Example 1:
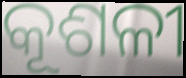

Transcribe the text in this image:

କୂଶଳୀ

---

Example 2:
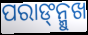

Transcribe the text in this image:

ପରାଙ୍‌ନ୍ମୁଖ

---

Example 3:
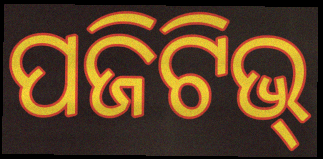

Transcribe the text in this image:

ପଜିଟିଭ୍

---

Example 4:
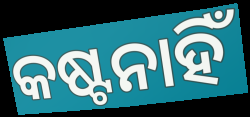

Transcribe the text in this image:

କଷ୍ଟନାହିଁ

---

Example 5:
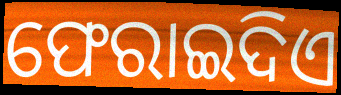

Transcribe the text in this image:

ଫେରାଇଦିଏ